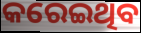
କରେଇଥିବ